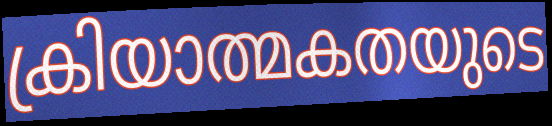
ക്രിയാത്മകതയുടെ